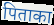
पिताका